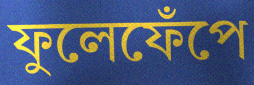
ফুলেফেঁপে